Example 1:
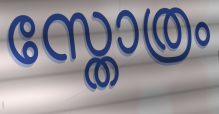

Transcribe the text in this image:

സ്തോത്രം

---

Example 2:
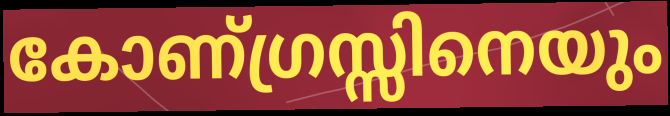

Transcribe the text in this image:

കോണ്ഗ്രസ്സിനെയും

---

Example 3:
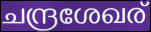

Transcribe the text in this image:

ചന്ദ്രശേഖര്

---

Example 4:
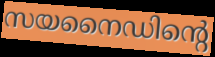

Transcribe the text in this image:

സയനൈഡിന്റെ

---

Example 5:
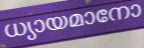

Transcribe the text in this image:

ധ്യായമാനോ